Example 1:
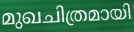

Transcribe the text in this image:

മുഖചിത്രമായി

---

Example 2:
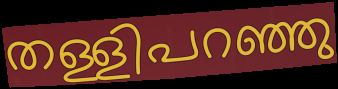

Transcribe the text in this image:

തള്ളിപറഞ്ഞു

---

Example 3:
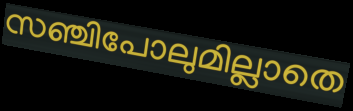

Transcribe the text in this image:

സഞ്ചിപോലുമില്ലാതെ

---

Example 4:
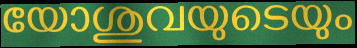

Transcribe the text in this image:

യോശുവയുടെയും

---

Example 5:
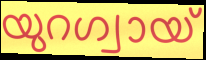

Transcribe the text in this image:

യുറഗ്വായ്